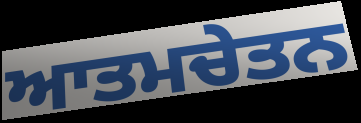
ਆਤਮਚੇਤਨ